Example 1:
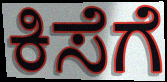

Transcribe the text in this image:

ಕಿಸೆಗೆ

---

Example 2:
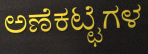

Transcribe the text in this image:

ಅಣೆಕಟ್ಟೆಗಳ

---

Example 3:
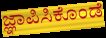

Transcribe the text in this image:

ಜ್ಞಾಪಿಸಿಕೊಂಡೆ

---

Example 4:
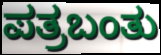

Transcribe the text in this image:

ಪತ್ರಬಂತು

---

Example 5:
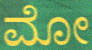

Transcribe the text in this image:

ಮೋ